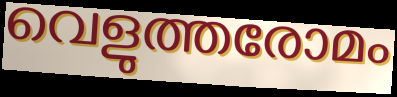
വെളുത്തരോമം